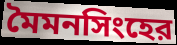
মৈমনসিংহের